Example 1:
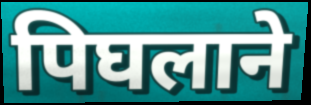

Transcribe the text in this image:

पिघलाने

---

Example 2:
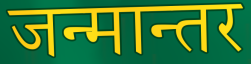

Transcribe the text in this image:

जन्मान्तर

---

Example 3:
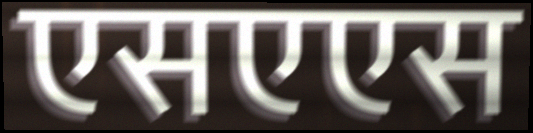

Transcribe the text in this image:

एसएएस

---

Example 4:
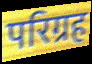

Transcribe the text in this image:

परिग्रह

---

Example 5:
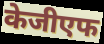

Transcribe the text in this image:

केजीएफ